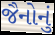
જૈનોનું